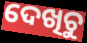
ଦେଖିଚୁ